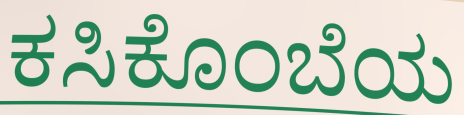
ಕಸಿಕೊಂಬೆಯ